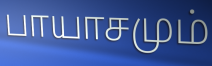
பாயாசமும்